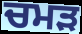
ਚਮੜ